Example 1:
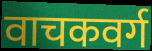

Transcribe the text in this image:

वाचकवर्ग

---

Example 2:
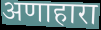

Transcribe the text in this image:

अणाहारा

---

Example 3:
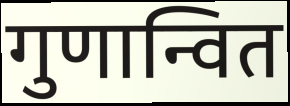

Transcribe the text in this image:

गुणान्वित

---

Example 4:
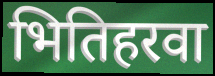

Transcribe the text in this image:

भितिहरवा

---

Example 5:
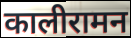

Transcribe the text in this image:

कालीरामन